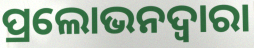
ପ୍ରଲୋଭନଦ୍ୱାରା